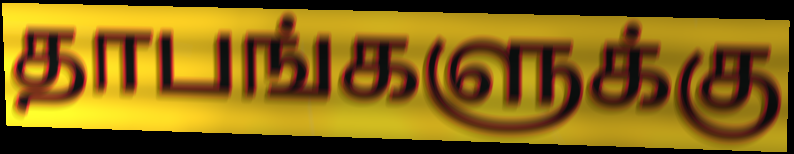
தாபங்களுக்கு